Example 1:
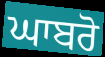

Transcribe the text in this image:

ਘਾਬਰੋ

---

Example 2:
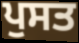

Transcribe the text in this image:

ਪੁਸਤ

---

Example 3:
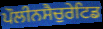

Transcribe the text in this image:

ਪੌਲੀਨਸੈਚੁਰੇਟਿਡ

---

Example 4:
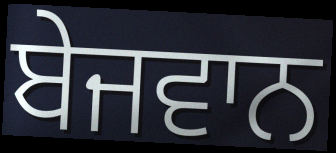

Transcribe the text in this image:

ਬੇਜਵਾਨ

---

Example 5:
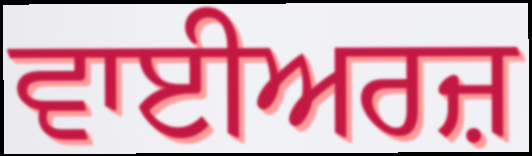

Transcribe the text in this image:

ਵਾਈਅਰਜ਼